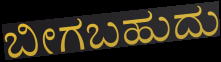
ಬೀಗಬಹುದು